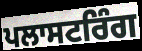
ਪਲਾਸਟਰਿੰਗ